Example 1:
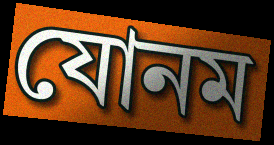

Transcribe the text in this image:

যোনম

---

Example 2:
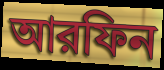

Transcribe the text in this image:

আরফিন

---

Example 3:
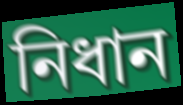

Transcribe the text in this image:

নিধান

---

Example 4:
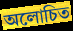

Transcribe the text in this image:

অলোচিত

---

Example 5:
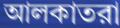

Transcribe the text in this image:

আলকাতরা